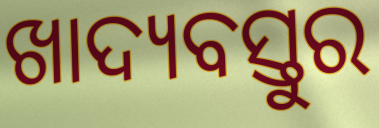
ଖାଦ୍ୟବସ୍ତୁର